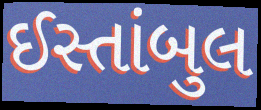
ઈસ્તાંબુલ